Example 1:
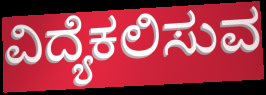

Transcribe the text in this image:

ವಿದ್ಯೆಕಲಿಸುವ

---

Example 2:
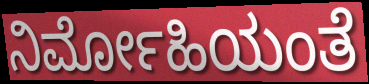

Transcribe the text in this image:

ನಿರ್ಮೋಹಿಯಂತೆ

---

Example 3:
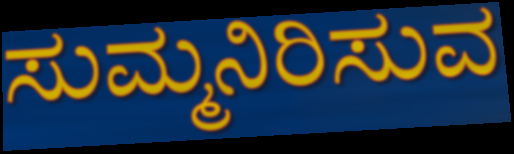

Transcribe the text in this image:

ಸುಮ್ಮನಿರಿಸುವ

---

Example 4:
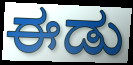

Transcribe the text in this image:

ಈಡು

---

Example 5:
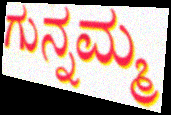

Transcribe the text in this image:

ಗುನ್ನಮ್ಮ